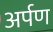
अर्पण